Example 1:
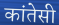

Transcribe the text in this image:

कांतेसी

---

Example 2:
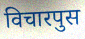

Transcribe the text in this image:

विचारपुस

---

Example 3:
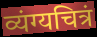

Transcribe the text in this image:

व्यंग्यचित्रं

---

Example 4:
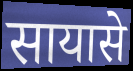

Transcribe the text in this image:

सायासे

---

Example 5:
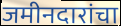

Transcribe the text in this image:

जमीनदारांचा